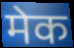
मेक